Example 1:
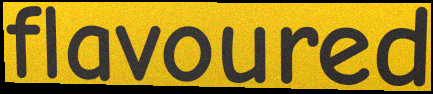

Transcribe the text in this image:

flavoured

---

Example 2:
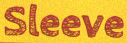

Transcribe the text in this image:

Sleeve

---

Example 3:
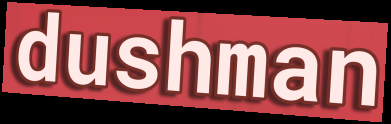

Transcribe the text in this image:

dushman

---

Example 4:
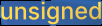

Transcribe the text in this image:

unsigned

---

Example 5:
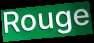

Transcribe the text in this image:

Rouge